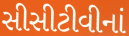
સીસીટીવીનાં